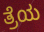
ತ್ರೆಯ